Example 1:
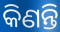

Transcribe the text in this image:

କିଣନ୍ତି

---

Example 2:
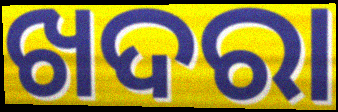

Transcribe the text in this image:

ଖଦରା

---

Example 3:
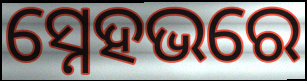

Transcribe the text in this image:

ସ୍ନେହଭରେ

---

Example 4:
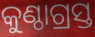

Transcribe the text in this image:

କୁଣ୍ଠାଗ୍ରସ୍ତ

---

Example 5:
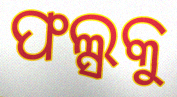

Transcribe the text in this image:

ଫଲ୍ସକୁ